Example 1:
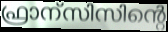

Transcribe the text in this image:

ഫ്രാന്സിസിന്റെ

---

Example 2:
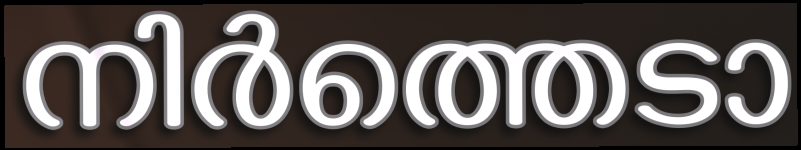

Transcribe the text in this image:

നിർത്തെടാ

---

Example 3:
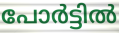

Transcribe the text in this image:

പോർട്ടിൽ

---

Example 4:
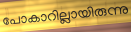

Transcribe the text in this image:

പോകാറില്ലായിരുന്നു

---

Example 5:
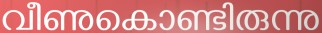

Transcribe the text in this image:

വീണുകൊണ്ടിരുന്നു